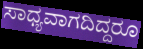
ಸಾಧ್ಯವಾಗದಿದ್ದರೂ